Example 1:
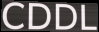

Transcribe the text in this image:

CDDL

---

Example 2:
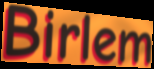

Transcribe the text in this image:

Birlem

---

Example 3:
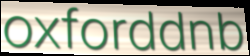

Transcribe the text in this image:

oxforddnb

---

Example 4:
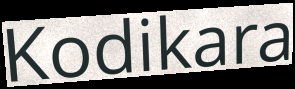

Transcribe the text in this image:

Kodikara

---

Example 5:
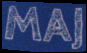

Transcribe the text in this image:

MAJ